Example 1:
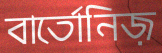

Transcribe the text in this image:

বার্তোনিজ়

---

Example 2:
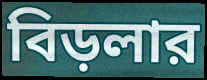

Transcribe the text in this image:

বিড়লার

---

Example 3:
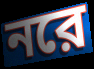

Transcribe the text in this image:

নরে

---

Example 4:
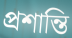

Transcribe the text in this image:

প্রশান্তি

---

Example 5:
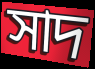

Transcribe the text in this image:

সাদ